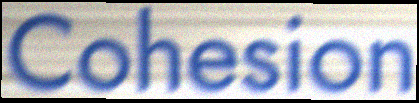
Cohesion